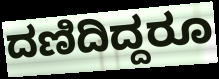
ದಣಿದಿದ್ದರೂ